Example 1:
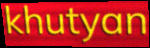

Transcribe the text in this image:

khutyan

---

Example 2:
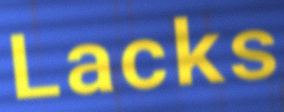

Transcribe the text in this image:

Lacks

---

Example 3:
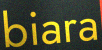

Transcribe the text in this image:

biara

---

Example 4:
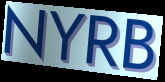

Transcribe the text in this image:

NYRB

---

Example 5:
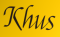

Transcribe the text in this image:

Khus